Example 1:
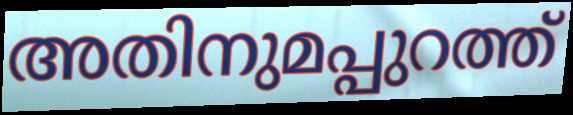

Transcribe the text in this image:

അതിനുമപ്പുറത്ത്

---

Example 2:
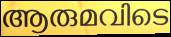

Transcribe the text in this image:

ആരുമവിടെ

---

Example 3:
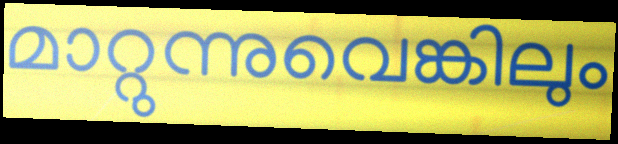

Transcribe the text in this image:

മാറ്റുന്നുവെങ്കിലും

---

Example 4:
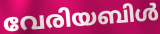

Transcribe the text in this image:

വേരിയബിൾ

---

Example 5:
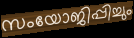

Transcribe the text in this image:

സംയോജിപ്പിച്ചും